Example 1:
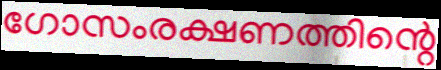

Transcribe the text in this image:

ഗോസംരക്ഷണത്തിന്റെ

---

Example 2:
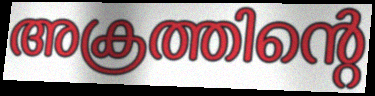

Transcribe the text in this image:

അക്രത്തിന്റെ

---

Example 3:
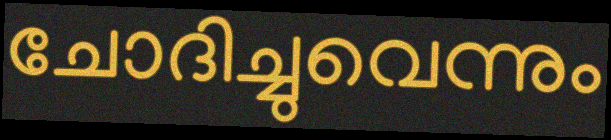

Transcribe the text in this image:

ചോദിച്ചുവെന്നും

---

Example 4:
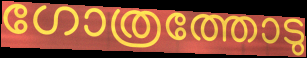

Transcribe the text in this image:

ഗോത്രത്തോടു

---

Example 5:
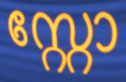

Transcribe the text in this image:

സ്റ്റോ